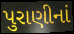
પુરાણીનાં